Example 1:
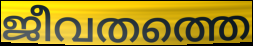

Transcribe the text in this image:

ജീവതത്തെ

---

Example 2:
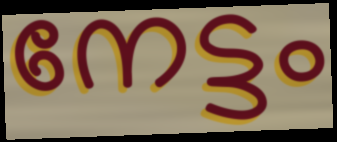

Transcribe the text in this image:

നേട്ടം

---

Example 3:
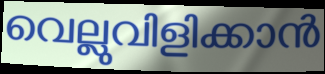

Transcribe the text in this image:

വെല്ലുവിളിക്കാൻ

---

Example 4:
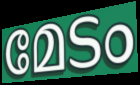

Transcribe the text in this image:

മേടം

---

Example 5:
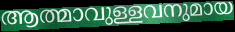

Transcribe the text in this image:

ആത്മാവുള്ളവനുമായ